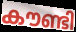
കൗണ്ടി